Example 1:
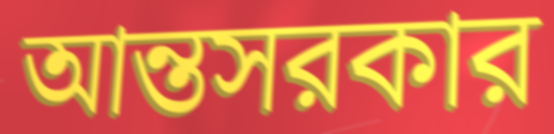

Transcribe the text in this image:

আন্তসরকার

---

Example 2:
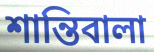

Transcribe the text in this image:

শান্তিবালা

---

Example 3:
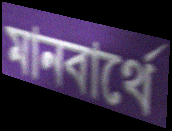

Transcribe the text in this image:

মানবার্থে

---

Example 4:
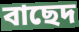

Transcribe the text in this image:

বাছেদ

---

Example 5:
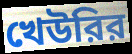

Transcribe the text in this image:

খেউরির